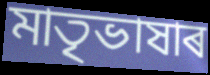
মাতৃভাষাৰ